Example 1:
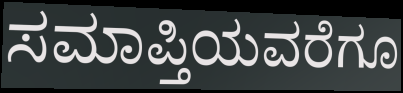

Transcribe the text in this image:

ಸಮಾಪ್ತಿಯವರೆಗೂ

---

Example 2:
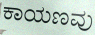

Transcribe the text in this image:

ಕಾಯಣವು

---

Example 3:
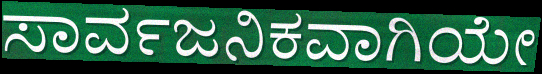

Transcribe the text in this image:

ಸಾರ್ವಜನಿಕವಾಗಿಯೇ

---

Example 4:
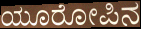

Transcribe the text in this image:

ಯೂರೋಪಿನ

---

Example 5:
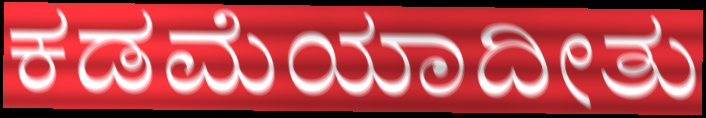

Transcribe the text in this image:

ಕಡಮೆಯಾದೀತು